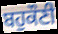
ਬਹੁਕੌਣੀ